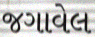
જગાવેલ